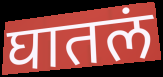
घातलं